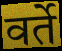
वर्ते